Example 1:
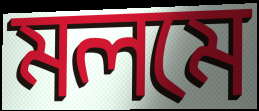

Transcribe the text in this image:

মলমে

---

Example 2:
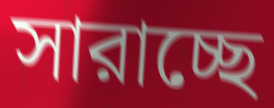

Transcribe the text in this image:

সারাচ্ছে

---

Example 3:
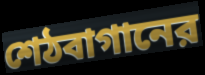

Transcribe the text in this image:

শেঠবাগানের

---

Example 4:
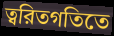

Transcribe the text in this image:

ত্বরিতগতিতে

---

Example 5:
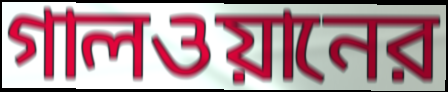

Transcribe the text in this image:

গালওয়ানের